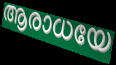
ആരാധയേ